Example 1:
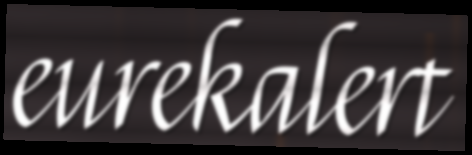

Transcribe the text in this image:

eurekalert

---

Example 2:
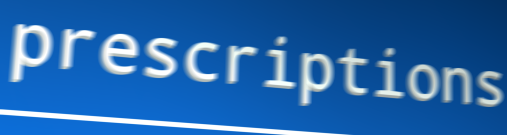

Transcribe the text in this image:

prescriptions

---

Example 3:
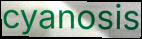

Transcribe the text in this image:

cyanosis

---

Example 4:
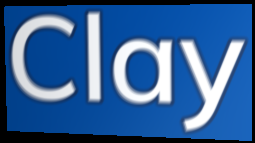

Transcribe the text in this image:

Clay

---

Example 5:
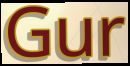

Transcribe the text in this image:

Gur